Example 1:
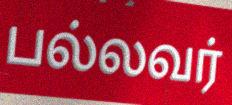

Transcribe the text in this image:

பல்லவர்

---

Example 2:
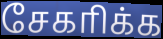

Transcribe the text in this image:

சேகரிக்க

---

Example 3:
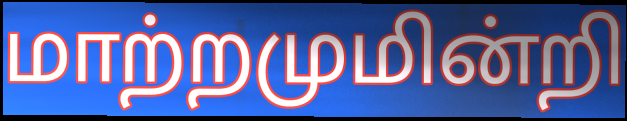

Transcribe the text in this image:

மாற்றமுமின்றி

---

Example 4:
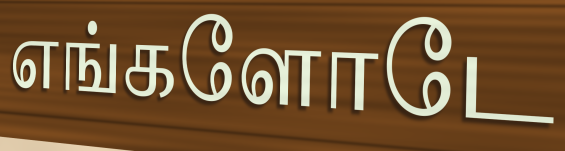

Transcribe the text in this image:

எங்களோடே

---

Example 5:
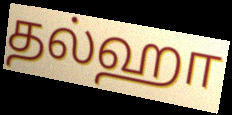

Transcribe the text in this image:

தல்ஹா